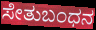
ಸೇತುಬಂಧನ